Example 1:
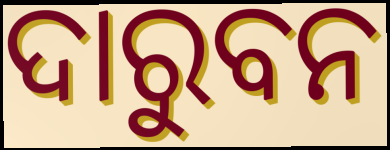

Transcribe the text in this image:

ଦାରୁବନ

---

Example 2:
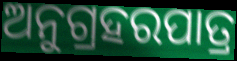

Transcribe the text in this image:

ଅନୁଗ୍ରହରପାତ୍ର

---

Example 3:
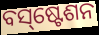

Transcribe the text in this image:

ବସ୍‌ଷ୍ଟେଶନ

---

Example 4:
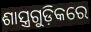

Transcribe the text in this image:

ଶାସ୍ତ୍ରଗୁଡ଼ିକରେ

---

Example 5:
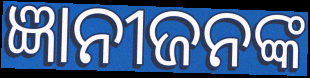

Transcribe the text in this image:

ଜ୍ଞାନୀଜନଙ୍କ